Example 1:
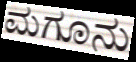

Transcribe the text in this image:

ಮಗೂನು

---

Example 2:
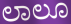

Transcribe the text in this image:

ಲಾಲೂ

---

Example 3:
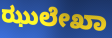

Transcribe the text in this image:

ಝುಲೇಖಾ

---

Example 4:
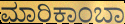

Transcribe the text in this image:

ಮಾರಿಕಾಂಬಾ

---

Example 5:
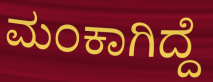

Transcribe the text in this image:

ಮಂಕಾಗಿದ್ದೆ